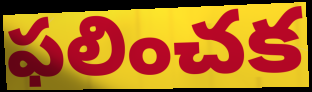
ఫలించక